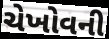
ચેખોવની